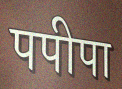
पपीपा